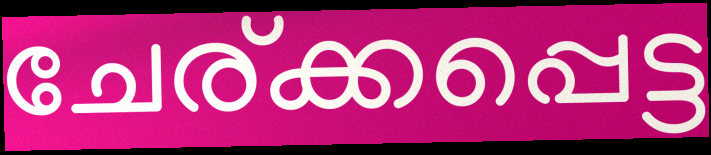
ചേര്ക്കപ്പെട്ട